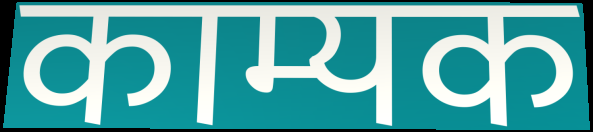
काम्यक